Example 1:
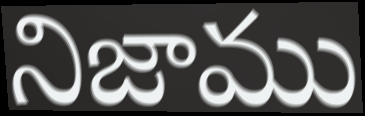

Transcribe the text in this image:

నిజాము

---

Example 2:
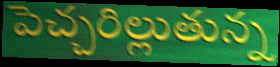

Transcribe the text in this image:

పెచ్చరిల్లుతున్న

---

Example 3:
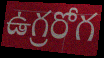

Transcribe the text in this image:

ఉగ్రరోగ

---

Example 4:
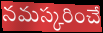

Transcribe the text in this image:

నమస్కరించే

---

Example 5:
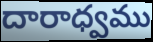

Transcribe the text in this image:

దారాధ్వము